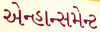
એન્હાન્સમેન્ટ